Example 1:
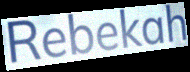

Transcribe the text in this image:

Rebekah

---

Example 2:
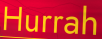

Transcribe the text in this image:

Hurrah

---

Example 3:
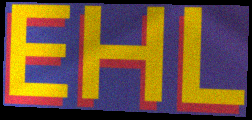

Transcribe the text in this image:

EHL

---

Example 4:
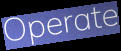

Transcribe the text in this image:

Operate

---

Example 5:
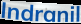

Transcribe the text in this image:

Indranil